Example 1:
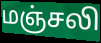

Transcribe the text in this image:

மஞ்சலி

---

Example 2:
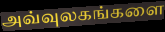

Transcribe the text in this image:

அவ்வுலகங்களை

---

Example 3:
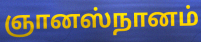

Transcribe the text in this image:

ஞானஸ்நானம்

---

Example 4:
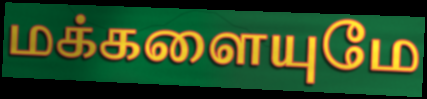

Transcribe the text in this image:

மக்களையுமே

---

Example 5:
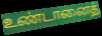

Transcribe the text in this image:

உண்டானைத்